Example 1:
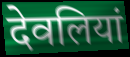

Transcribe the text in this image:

देवलियां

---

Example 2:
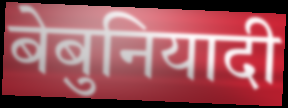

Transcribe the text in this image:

बेबुनियादी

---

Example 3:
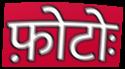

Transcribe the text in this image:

फ़ोटोः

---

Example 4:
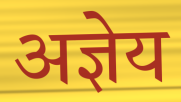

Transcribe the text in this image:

अज्ञेय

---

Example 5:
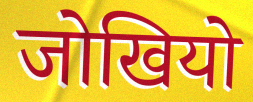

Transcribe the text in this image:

जोखियो